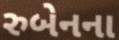
રુબેનના